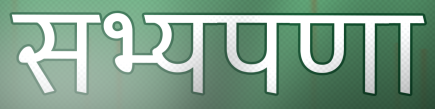
सभ्यपणा